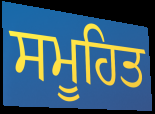
ਸਮੂਹਿਤ